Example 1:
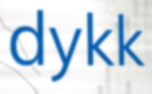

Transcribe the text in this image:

dykk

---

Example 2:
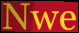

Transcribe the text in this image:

Nwe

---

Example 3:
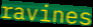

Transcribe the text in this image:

ravines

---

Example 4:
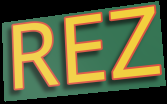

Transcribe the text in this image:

REZ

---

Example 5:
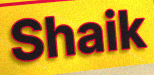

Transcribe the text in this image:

Shaik